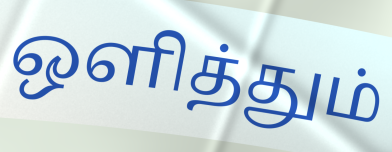
ஒளித்தும்